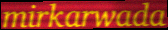
mirkarwada